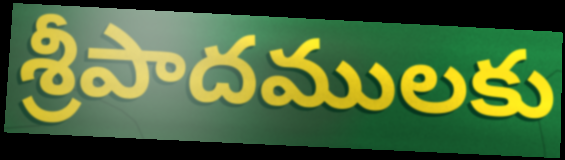
శ్రీపాదములకు